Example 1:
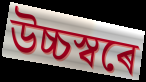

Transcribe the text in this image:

উচ্চস্বৰে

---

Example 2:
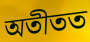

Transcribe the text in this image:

অতীতত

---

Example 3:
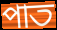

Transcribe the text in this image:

পাত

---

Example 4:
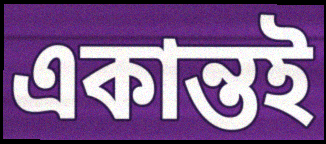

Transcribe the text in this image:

একান্তই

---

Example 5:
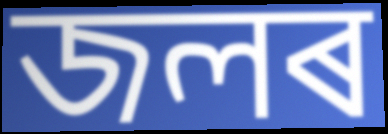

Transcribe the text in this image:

জলৰ